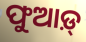
ଫୁଆଡ଼୍